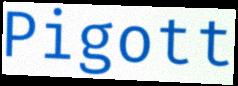
Pigott